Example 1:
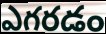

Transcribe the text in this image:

ఎగరడం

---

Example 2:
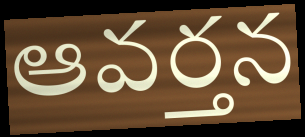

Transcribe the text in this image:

ఆవర్తన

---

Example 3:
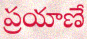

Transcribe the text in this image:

ప్రయాణే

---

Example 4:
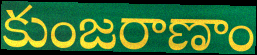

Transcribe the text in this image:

కుంజరాణాం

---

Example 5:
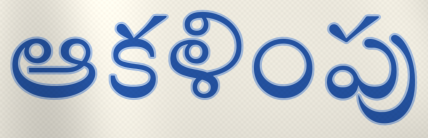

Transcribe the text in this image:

ఆకళింపు